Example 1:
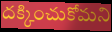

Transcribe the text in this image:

దక్కించుకోమని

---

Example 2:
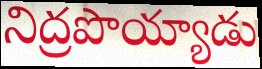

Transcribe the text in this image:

నిద్రపొయ్యాడు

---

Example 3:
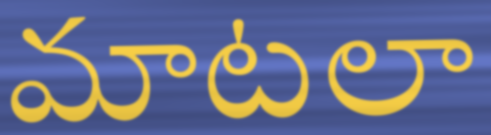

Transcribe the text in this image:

మాటలా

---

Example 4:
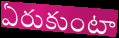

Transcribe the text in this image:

ఏరుకుంటా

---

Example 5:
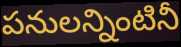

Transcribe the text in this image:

పనులన్నింటినీ